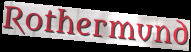
Rothermund